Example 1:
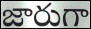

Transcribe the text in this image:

జారుగా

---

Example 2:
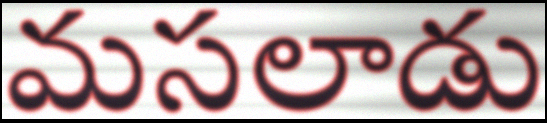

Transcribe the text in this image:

మసలాడు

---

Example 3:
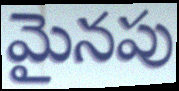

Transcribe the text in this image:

మైనపు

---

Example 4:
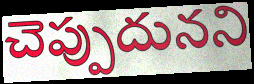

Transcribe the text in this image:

చెప్పుదునని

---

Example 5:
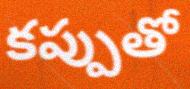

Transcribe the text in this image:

కప్పుతో